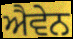
ਐਵੇਨ